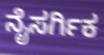
ನೈಸರ್ಗಿಕ